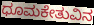
ಧೂಮಕೇತುವಿನ